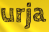
urja